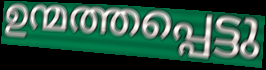
ഉന്മത്തപ്പെട്ടു